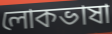
লোকভাষা